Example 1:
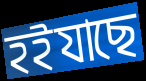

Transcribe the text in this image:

হইযাছে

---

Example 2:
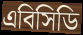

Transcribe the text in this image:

এবিসিডি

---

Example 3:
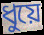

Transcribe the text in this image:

ধুয়ে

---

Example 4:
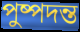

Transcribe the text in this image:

পুষ্পদন্ত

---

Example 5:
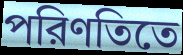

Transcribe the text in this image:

পরিণতিতে